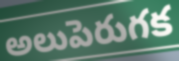
అలుపెరుగక